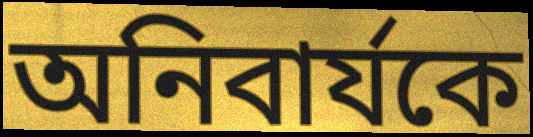
অনিবার্যকে